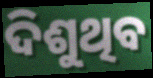
ଦିଶୁଥିବ